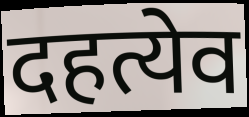
दहत्येव